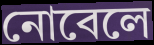
নোবেলে